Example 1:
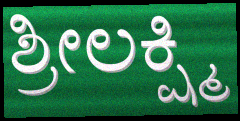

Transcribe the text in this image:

ಶ್ರೀಲಕ್ಷ್ಮಿ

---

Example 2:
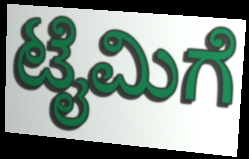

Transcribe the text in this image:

ಟೈಮಿಗೆ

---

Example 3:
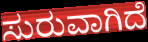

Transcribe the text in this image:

ಸುರುವಾಗಿದೆ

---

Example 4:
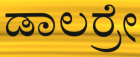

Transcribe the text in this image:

ಡಾಲರ್ರೇ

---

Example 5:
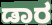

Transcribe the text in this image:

ಡಾರ